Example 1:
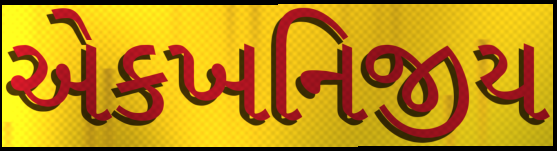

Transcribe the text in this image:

એકખનિજીય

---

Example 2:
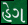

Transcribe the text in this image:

હેગ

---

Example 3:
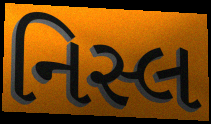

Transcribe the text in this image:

નિસ્લ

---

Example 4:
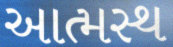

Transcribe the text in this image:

આત્મસ્થ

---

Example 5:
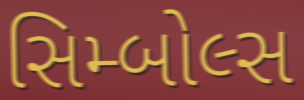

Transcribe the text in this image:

સિમ્બોલ્સ